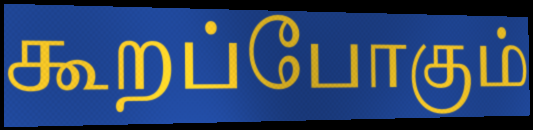
கூறப்போகும்